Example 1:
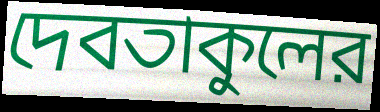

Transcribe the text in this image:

দেবতাকুলের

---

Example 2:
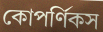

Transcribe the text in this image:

কোপর্ণিকস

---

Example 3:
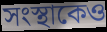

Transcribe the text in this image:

সংস্থাকেও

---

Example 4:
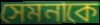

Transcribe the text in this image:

সেমনাকে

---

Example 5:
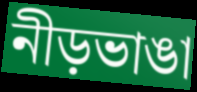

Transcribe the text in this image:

নীড়ভাঙা